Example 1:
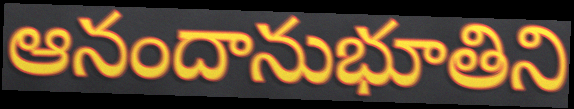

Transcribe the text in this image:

ఆనందానుభూతిని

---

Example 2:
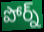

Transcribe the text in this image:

పోర్న్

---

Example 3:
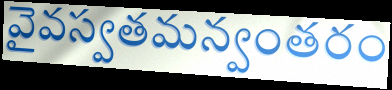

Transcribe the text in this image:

వైవస్వతమన్వంతరం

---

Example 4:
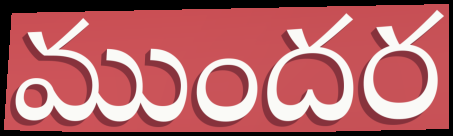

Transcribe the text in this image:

ముందర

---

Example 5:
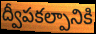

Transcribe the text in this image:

ద్వీపకల్పానికి